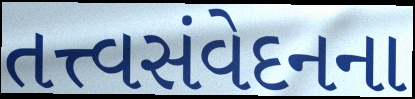
તત્ત્વસંવેદનના